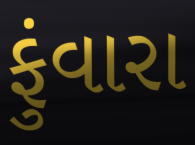
ફુંવારા